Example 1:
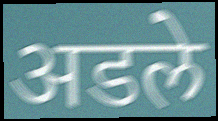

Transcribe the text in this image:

अडले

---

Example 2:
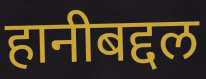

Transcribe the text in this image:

हानीबद्दल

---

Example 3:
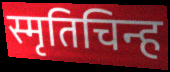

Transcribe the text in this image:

स्मृतिचिन्ह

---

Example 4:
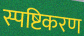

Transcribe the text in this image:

स्पष्टिकरण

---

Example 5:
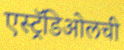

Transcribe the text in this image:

एस्ट्रॅडिओलची